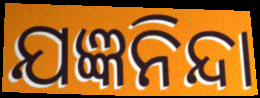
ଯଜ୍ଞନିନ୍ଦା